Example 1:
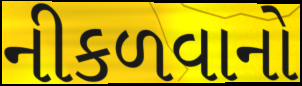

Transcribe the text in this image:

નીકળવાનો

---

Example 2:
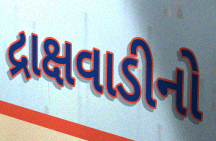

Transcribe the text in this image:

દ્રાક્ષવાડીનો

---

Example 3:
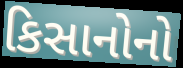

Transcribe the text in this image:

કિસાનોનો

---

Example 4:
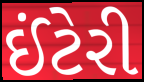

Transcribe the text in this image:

ઈંટેરી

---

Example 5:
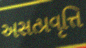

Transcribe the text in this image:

અસત્પ્રવૃત્તિ